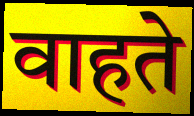
वाहते